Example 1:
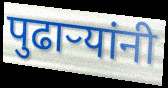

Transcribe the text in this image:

पुढाऱ्यांनी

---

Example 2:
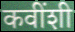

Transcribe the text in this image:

कवींशी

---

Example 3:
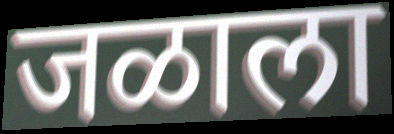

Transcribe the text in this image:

जळाला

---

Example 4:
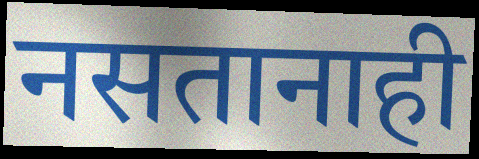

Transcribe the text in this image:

नसतानाही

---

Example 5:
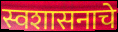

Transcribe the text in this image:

स्वशासनाचे